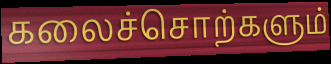
கலைச்சொற்களும்